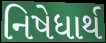
નિષેધાર્થ